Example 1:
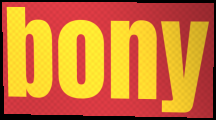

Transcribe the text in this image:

bony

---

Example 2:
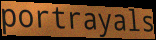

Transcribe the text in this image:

portrayals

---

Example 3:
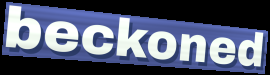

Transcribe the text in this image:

beckoned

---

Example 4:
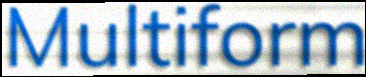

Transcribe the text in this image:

Multiform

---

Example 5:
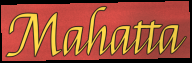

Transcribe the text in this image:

Mahatta